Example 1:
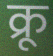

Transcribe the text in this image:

क्रू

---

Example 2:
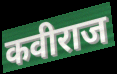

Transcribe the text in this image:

कवीराज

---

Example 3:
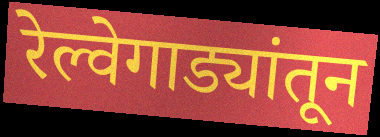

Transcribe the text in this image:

रेल्वेगाड्यांतून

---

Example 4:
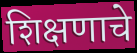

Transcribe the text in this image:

शिक्षणाचे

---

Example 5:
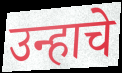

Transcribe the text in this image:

उन्हाचे